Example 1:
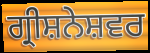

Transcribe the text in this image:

ਗ੍ਰੀਸ਼ਨੇਸ਼ਵਰ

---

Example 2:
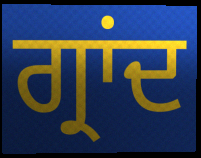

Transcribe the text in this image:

ਗ੍ਰਾਂਦ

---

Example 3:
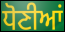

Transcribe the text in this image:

ਧੋਣੀਆਂ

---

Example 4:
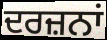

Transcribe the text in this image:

ਦਰਜ਼ਨਾਂ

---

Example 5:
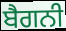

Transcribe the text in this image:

ਬੈਗਨੀ